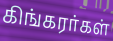
கிங்கரர்கள்